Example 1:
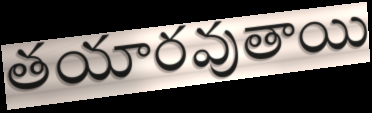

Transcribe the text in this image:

తయారవుతాయి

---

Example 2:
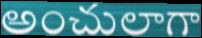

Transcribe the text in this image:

అంచులాగా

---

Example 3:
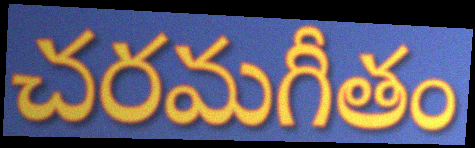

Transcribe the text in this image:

చరమగీతం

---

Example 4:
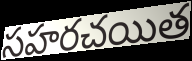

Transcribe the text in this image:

సహరచయిత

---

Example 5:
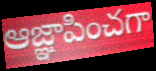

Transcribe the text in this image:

ఆజ్ఞాపించగా